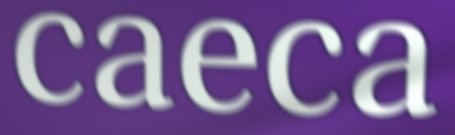
caeca